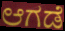
ಆಗಡೆ